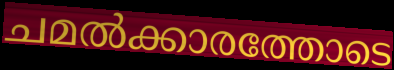
ചമൽക്കാരത്തോടെ